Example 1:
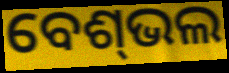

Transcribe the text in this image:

ବେଶ୍‌ଭଲ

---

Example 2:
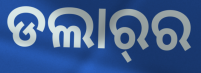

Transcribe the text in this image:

ଡଲାର୍‌ର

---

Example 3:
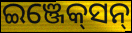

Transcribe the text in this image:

ଇଞ୍ଜେକ୍‍ସନ୍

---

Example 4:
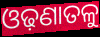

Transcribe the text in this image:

ଓଢ଼ଣାତଳୁ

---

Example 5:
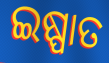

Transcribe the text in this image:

ଇଷ୍ପାତ